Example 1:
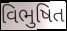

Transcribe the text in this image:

વિભુષિત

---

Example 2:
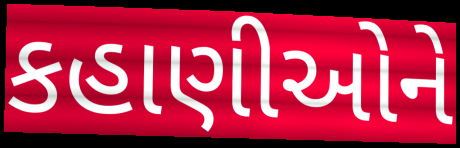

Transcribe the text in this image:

કહાણીઓને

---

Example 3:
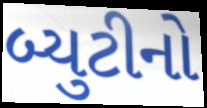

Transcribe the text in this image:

બ્યુટીનો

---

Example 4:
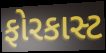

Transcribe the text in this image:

ફોરકાસ્ટ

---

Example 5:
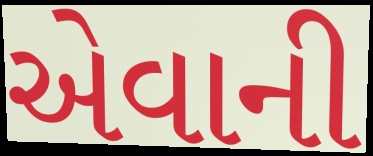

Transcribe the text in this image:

એવાની